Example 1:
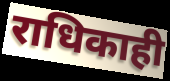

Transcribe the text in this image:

राधिकाही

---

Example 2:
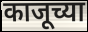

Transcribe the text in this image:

काजूच्या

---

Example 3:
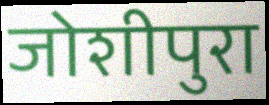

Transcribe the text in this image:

जोशीपुरा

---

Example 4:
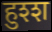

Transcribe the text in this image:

हुश्श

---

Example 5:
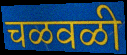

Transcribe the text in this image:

चळवळी